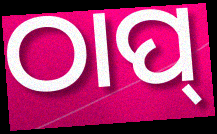
ଠାପ୍